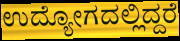
ಉದ್ಯೋಗದಲ್ಲಿದ್ದರೆ